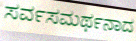
ಸರ್ವಸಮರ್ಥನಾದ